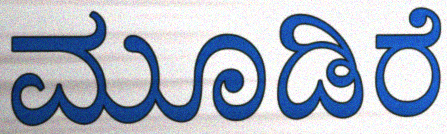
ಮೂಡಿರೆ